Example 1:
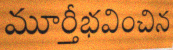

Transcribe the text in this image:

మూర్తీభవించిన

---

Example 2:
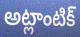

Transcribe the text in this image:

అట్లాంటిక్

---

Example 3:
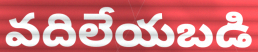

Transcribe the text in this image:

వదిలేయబడి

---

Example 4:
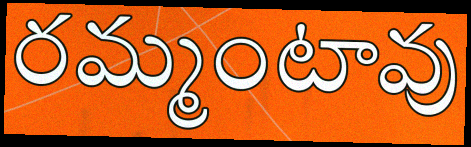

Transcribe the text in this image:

రమ్మంటావు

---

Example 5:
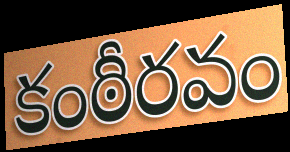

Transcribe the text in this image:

కంఠీరవం